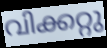
വിക്കറ്റു